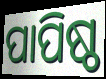
ପାପିଷ୍ଠ